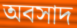
অবসাদ